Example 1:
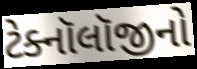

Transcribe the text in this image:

ટેક્નૉલૉજીનો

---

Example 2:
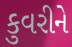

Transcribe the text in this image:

કુવરીને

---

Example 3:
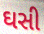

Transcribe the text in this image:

ઘસી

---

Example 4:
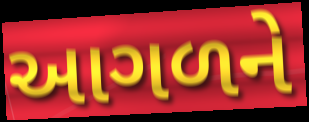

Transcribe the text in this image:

આગળને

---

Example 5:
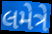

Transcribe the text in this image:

લમેત્રે